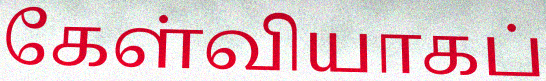
கேள்வியாகப்